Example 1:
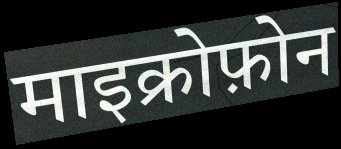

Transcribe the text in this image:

माइक्रोफ़ोन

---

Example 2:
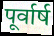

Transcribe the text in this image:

पूर्वार्ष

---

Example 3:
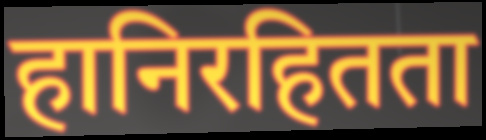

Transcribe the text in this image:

हानिरहितता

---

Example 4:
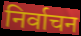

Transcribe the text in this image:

निर्वाचन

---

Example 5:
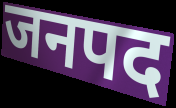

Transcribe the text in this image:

जनपद